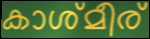
കാശ്മീര്